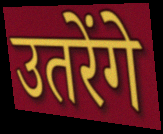
उतरेंगे